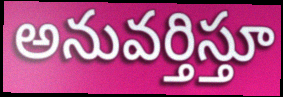
అనువర్తిస్తూ